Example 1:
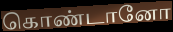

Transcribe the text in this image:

கொண்டானோ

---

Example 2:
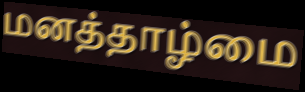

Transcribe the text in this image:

மனத்தாழ்மை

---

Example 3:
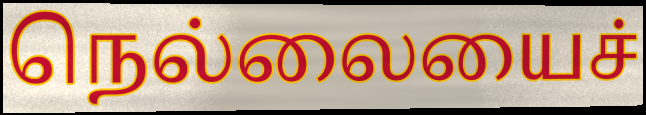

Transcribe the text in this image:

நெல்லையைச்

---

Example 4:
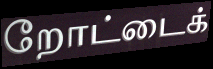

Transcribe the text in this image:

றோட்டைக்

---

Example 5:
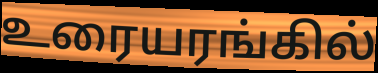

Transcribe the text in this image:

உரையரங்கில்